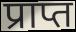
प्राप्‍त